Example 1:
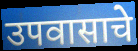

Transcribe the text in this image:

उपवासाचे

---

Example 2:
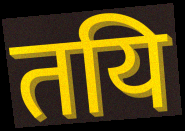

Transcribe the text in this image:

तयि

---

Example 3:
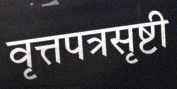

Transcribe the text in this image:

वृत्तपत्रसृष्टी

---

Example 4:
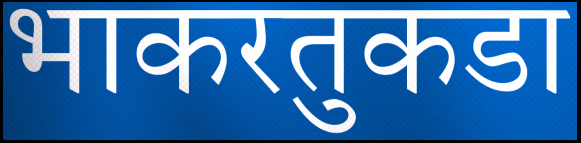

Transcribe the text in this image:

भाकरतुकडा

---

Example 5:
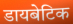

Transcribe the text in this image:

डायबेटिक